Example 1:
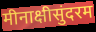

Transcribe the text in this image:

मीनाक्षीसुंदरम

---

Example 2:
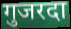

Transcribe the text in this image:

गुजरदा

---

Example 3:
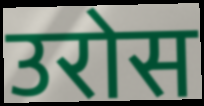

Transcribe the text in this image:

उरोस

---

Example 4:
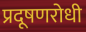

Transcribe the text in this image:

प्रदूषणरोधी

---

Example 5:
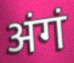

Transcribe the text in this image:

अंगं